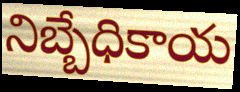
నిబ్బేధికాయ